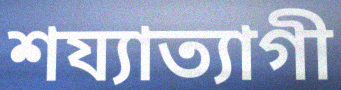
শয্যাত্যাগী